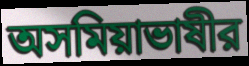
অসমিয়াভাষীর